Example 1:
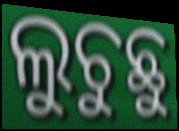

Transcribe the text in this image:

ଲୁଚୁଛୁ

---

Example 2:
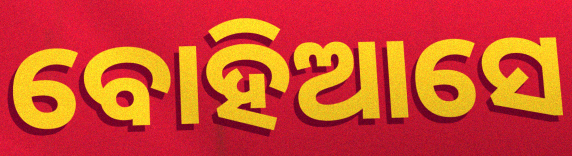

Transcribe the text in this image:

ବୋହିଆସେ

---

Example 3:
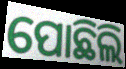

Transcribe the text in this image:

ପୋଛିଲି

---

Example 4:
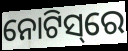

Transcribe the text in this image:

ନୋଟିସ୍‌ରେ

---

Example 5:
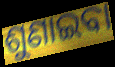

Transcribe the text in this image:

ଶୁଣାଇବା